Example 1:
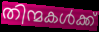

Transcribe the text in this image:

തിന്മകൾക്ക്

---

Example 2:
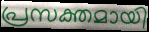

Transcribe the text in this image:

പ്രസക്തമായി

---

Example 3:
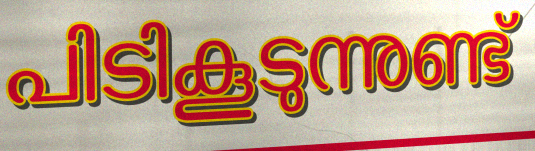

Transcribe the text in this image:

പിടികൂടുന്നുണ്ട്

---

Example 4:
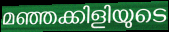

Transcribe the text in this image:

മഞ്ഞക്കിളിയുടെ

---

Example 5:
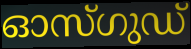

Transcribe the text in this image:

ഓസ്ഗുഡ്